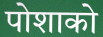
पोशाको